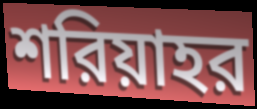
শরিয়াহর